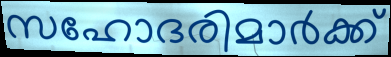
സഹോദരിമാർക്ക്